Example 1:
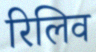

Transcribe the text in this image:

रिलिव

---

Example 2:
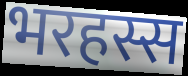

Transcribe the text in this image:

भरहस्स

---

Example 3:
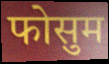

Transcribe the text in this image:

फोसुम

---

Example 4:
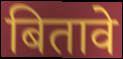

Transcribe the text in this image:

बितावे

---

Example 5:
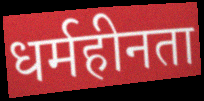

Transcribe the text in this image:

धर्महीनता